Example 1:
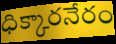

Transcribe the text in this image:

ధిక్కారనేరం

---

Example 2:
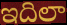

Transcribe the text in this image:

ఇదిలా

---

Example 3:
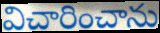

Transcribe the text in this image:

విచారించాను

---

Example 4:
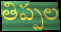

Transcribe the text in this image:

తిప్పల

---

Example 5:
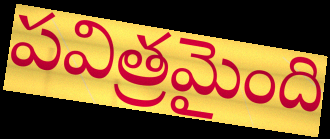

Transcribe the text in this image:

పవిత్రమైంది